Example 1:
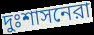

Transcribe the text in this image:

দুঃশাসনেরা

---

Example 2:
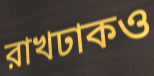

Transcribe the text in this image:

রাখঢাকও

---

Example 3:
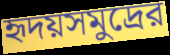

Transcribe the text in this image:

হৃদয়সমুদ্রের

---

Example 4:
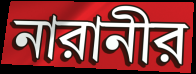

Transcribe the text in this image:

নারানীর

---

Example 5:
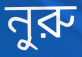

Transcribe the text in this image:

নুরু